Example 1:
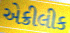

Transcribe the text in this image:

એક્રીલીક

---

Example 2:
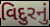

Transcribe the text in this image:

વિદુરનું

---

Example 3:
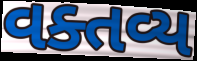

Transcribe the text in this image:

વક્તવ્ય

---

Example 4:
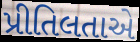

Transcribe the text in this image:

પ્રીતિલતાએ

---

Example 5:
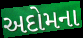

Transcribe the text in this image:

અદોમના